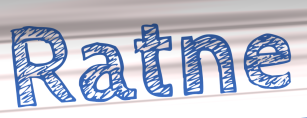
Ratne